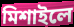
মিশাইলে